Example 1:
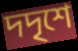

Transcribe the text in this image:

দদৃশে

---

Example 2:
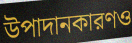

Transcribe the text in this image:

উপাদানকারণও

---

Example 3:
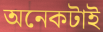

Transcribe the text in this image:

অনেকটাই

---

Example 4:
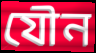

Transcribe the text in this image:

যৌন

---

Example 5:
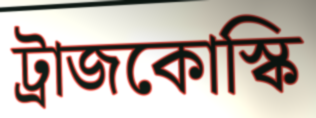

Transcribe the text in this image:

ট্রাজকোস্কি